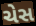
ચેસ